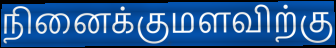
நினைக்குமளவிற்கு